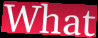
What